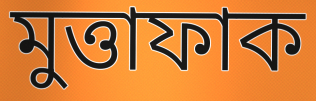
মুত্তাফাক